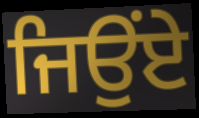
ਜਿਉਂਏ